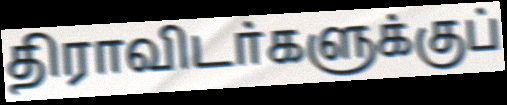
திராவிடர்களுக்குப்